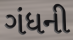
ગંધની